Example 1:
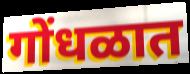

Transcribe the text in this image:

गोंधळात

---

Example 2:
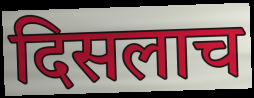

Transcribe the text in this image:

दिसलाच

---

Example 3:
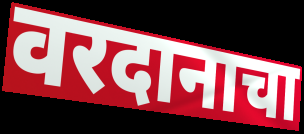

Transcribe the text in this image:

वरदानाचा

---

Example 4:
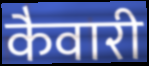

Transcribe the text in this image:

कैवारी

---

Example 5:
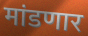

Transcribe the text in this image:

मांडणार